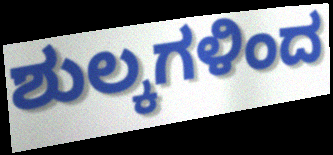
ಶುಲ್ಕಗಳಿಂದ